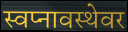
स्वप्नावस्थेवर